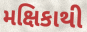
મક્ષિકાથી